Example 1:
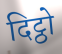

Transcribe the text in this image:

दिट्ठो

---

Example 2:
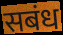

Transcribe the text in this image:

सबंध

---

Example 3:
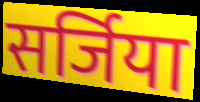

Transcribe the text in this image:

सर्जिया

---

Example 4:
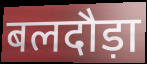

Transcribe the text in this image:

बलदौड़ा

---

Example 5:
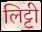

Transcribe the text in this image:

लिट्टी